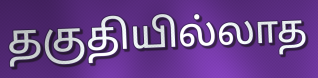
தகுதியில்லாத